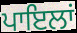
ਪਾਇਲਾਂ